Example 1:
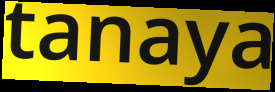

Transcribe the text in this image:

tanaya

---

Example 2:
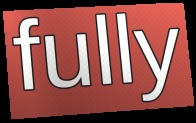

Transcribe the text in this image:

fully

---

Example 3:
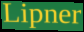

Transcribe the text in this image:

Lipner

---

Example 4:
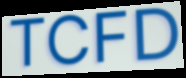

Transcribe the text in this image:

TCFD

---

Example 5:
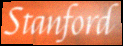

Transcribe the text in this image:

Stanford